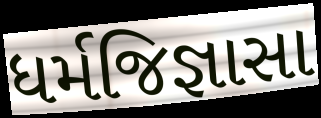
ધર્મજિજ્ઞાસા